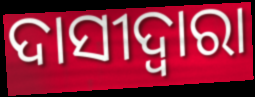
ଦାସୀଦ୍ୱାରା